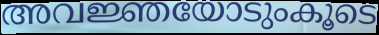
അവജ്ഞയോടുംകൂടെ